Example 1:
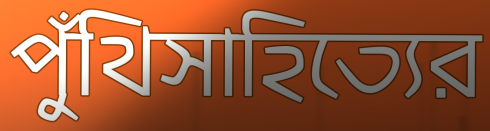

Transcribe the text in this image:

পুঁথিসাহিত্যের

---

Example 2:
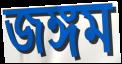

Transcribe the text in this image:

জঙ্গম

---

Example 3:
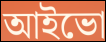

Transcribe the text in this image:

আইভো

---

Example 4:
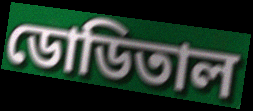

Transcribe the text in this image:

ডোডিতাল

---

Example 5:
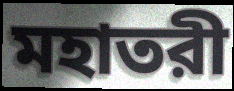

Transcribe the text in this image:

মহাতরী